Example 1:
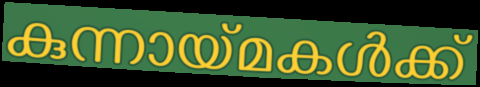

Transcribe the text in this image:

കുന്നായ്മകൾക്ക്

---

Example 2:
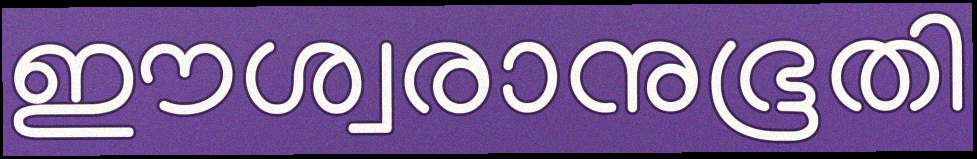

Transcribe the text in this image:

ഈശ്വരാനുഭൂതി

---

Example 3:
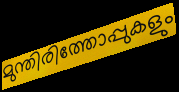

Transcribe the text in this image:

മുന്തിരിത്തോപ്പുകളും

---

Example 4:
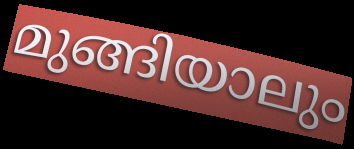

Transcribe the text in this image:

മുങ്ങിയാലും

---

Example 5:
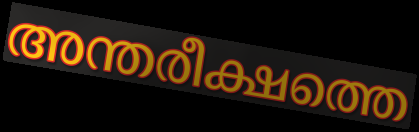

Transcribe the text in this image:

അന്തരീക്ഷത്തെ